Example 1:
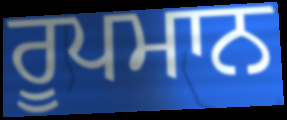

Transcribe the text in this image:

ਰੂਪਮਾਨ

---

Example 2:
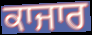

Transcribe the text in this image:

ਕਾਜਾਰ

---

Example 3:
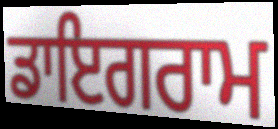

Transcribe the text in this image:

ਡਾਇਗਰਾਮ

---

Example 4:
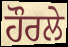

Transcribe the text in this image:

ਹੌਰਲੇ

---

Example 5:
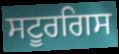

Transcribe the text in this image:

ਸਟੂਰਗਿਸ